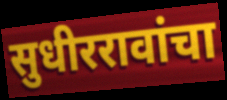
सुधीररावांचा